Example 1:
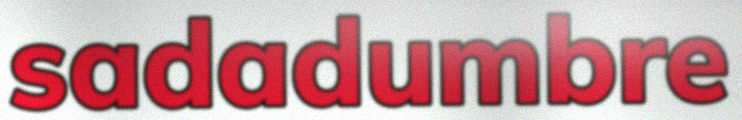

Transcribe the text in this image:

sadadumbre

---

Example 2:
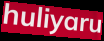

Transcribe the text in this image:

huliyaru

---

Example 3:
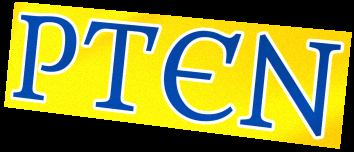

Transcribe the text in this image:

PTEN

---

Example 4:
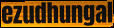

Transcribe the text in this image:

ezudhungal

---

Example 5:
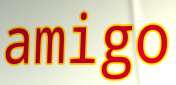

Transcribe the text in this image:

amigo